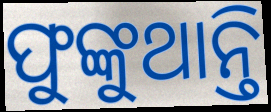
ଫୁଙ୍କୁଥାନ୍ତି